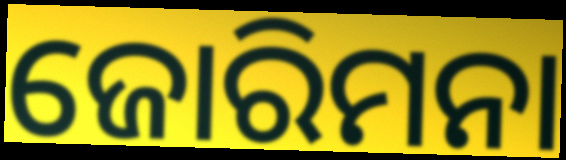
ଜୋରିମନା